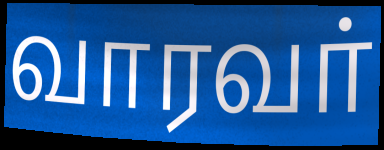
வாரவர்